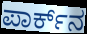
ಪಾರ್ಕ್‌ನ